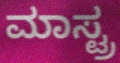
ಮಾಸ್ಟ್ರ